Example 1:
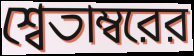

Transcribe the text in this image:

শ্বেতাম্বরের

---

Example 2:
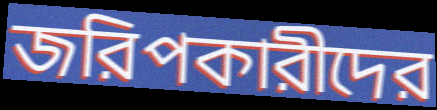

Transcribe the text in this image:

জরিপকারীদের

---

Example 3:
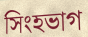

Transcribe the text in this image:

সিংহভাগ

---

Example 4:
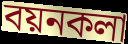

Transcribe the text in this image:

বয়নকলা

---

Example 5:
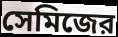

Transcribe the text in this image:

সেমিজের